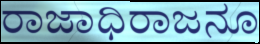
ರಾಜಾಧಿರಾಜನೂ